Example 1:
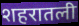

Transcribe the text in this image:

शहरातली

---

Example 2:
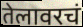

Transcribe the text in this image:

तेलावरचं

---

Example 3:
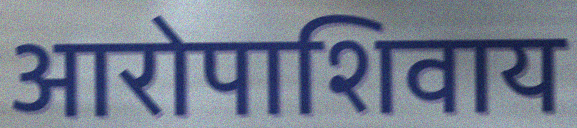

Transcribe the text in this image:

आरोपाशिवाय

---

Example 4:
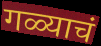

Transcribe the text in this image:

गळ्याचं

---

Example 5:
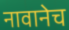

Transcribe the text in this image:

नावानेच